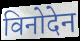
विनोदेन